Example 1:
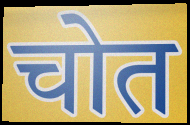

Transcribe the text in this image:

चोत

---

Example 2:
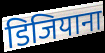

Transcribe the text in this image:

डिजियाना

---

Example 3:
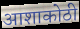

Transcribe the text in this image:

आशाकोठी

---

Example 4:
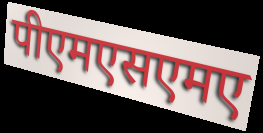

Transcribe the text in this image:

पीएमएसएमए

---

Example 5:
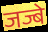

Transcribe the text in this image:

जज्बे